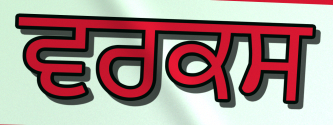
ਵਰਕਸ